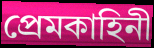
প্রেমকাহিনী